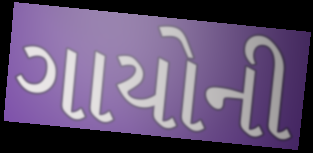
ગાયોની